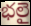
భలై